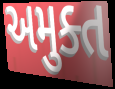
અમુક્ત